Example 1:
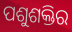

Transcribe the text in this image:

ପଶୁଶକ୍ତିର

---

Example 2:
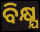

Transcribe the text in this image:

ବିକ୍ଷ୍ଯ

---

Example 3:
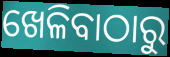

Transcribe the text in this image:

ଖେଳିବାଠାରୁ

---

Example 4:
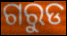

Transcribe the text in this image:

ଗରୁଡ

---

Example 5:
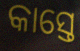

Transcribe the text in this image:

କାସ୍ତେ